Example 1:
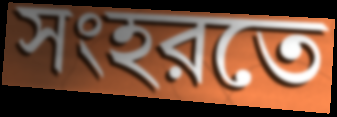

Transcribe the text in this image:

সংহরতে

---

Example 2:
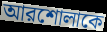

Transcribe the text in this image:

আরশোলাকে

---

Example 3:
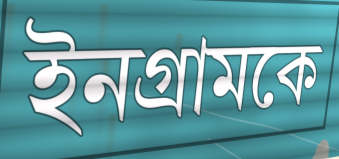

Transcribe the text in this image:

ইনগ্রামকে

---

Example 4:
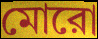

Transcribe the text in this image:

মোরো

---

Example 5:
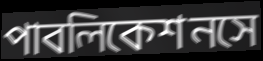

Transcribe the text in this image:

পাবলিকেশনসে